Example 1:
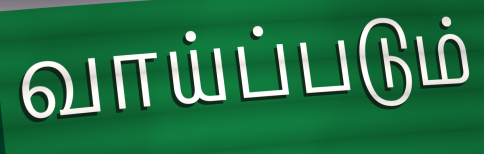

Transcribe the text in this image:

வாய்ப்படும்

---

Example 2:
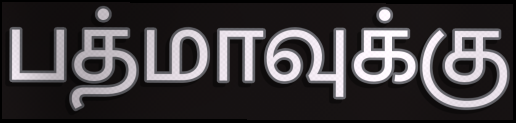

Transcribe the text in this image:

பத்மாவுக்கு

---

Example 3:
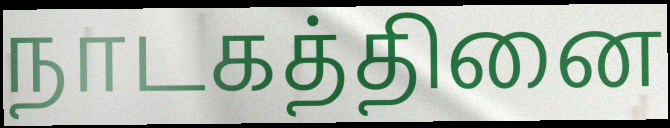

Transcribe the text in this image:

நாடகத்தினை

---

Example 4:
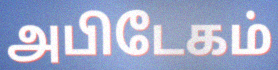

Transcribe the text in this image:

அபிடேகம்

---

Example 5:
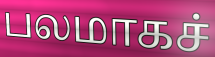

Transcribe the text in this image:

பலமாகச்